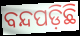
ବନ୍ଦପଡ଼ିଛି